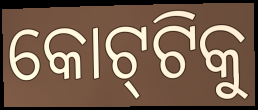
କୋଟ୍‌ଟିକୁ